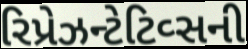
રિપ્રેઝન્ટેટિવ્સની